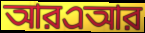
আরএআর